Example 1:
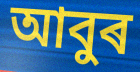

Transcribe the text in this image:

আবুৰ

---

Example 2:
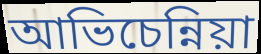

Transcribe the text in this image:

আভিচেন্নিয়া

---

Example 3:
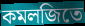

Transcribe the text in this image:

কমলজিতে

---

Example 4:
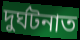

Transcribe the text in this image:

দুৰ্ঘটনাত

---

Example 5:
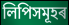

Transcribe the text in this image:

লিপিসমূহৰ